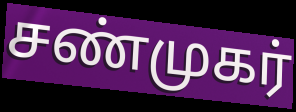
சண்முகர்